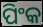
ପିଂକ